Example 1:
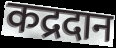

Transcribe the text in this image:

कद्रदान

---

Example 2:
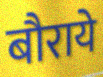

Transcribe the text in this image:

बौराये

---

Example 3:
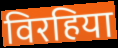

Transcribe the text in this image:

विरहिया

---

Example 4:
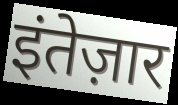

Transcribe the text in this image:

इंतेज़ार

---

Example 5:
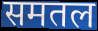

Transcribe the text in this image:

समतल